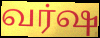
வர்ஷ